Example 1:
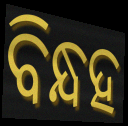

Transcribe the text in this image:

ବିନ୍ଧହ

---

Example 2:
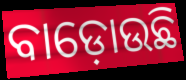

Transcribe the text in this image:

ବାଡ଼ୋଉଛି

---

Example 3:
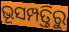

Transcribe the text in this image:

ଭୂସମ୍ପତ୍ତିରୁ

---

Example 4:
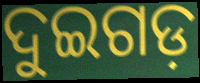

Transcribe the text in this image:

ଦୁଇଗଡ଼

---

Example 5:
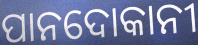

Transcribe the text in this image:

ପାନଦୋକାନୀ